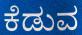
ಕೆಡುವ